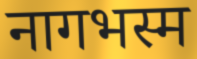
नागभस्म